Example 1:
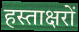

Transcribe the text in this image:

हस्ताक्षरों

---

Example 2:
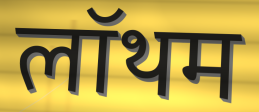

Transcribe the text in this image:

लॉथम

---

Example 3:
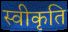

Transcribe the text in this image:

स्वीकृति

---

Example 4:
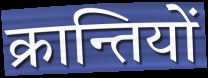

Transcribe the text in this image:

क्रान्तियों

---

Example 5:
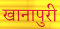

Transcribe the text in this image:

खानापुरी